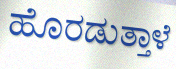
ಹೊರಡುತ್ತಾಳೆ